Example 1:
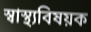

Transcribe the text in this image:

স্বাস্থ্যবিষয়ক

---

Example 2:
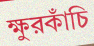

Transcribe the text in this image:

ক্ষুরকাঁচি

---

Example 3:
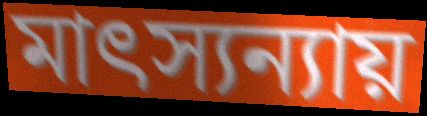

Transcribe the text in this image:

মাৎস্যন্যায়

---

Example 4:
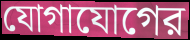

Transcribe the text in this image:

যোগাযোগের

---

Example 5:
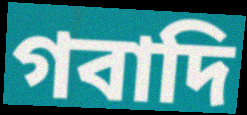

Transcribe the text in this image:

গবাদি